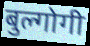
बुल्गोगी